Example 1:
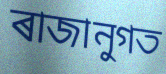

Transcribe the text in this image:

ৰাজানুগত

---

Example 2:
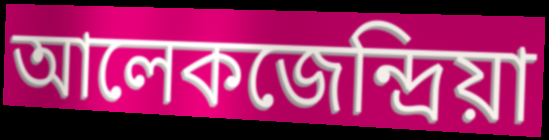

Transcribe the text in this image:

আলেকজেন্দ্ৰিয়া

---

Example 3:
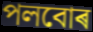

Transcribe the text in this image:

পলবোৰ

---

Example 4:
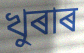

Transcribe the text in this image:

খুৰাৰ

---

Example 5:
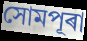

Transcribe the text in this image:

সোমপূৰা